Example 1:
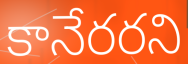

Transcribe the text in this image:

కానేరరని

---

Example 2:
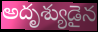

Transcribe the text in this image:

అదృశ్యుడైన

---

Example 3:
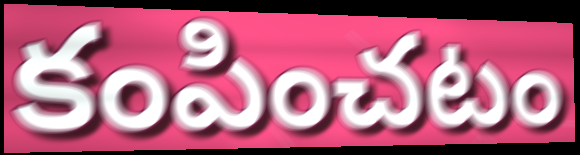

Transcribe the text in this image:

కంపించటం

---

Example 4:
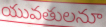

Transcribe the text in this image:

యువతులనూ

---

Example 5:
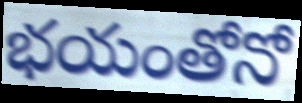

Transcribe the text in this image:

భయంతోనో